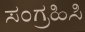
ಸಂಗ್ರಹಿಸಿ